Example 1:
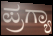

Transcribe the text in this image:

ಪ್ರಗ್ಯಾ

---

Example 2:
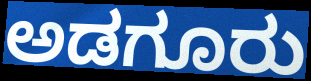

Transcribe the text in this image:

ಅಡಗೂರು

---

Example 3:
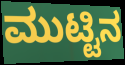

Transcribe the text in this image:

ಮುಟ್ಟಿನ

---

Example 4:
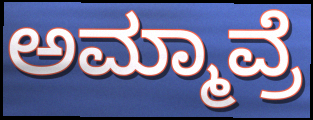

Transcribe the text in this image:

ಅಮ್ಮಾವ್ರೆ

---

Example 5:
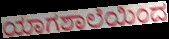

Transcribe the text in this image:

ಯಾಗಶಾಲೆಯಿಂದ